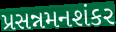
પ્રસન્નમનશંકર